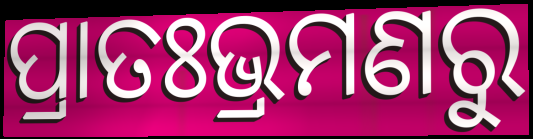
ପ୍ରାତଃଭ୍ରମଣରୁ